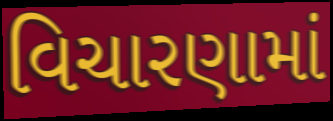
વિચારણામાં